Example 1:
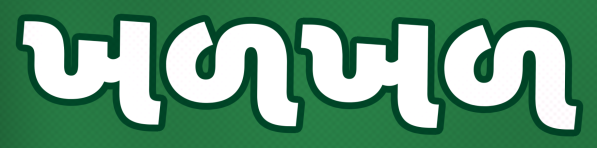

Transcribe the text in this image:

ખળખળ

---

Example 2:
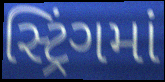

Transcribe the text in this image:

સ્ટ્રિંગમાં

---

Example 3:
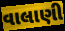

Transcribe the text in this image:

વાલાણી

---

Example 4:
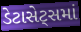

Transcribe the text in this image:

ડેટાસેટ્સમાં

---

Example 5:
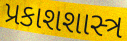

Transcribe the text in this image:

પ્રકાશશાસ્ત્ર